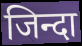
जिन्दा